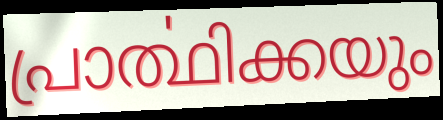
പ്രാൎത്ഥിക്കയും